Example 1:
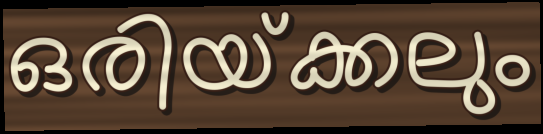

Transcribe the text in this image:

ഒരിയ്‌ക്കലും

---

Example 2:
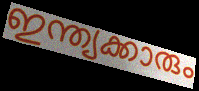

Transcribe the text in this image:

ഇന്ത്യക്കാരും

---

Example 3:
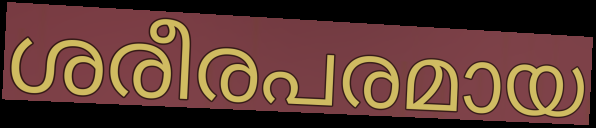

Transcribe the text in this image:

ശരീരപരമായ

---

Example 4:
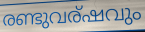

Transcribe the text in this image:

രണ്ടുവര്ഷവും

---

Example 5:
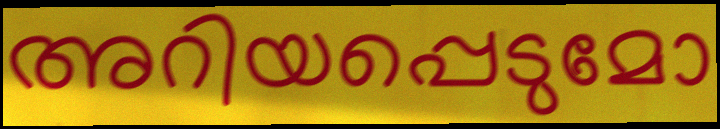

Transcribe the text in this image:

അറിയപ്പെടുമോ